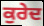
ਕੁਰੇਦ